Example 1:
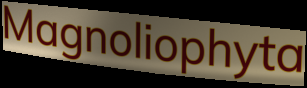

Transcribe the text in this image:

Magnoliophyta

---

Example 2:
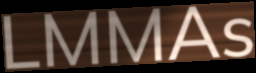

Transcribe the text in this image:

LMMAs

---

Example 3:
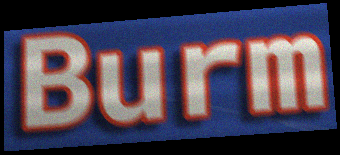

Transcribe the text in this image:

Burm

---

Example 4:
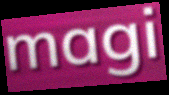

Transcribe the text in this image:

magi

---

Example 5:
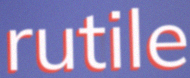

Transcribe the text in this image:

rutile